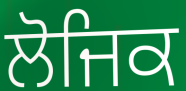
ਲੋਜਿਕ